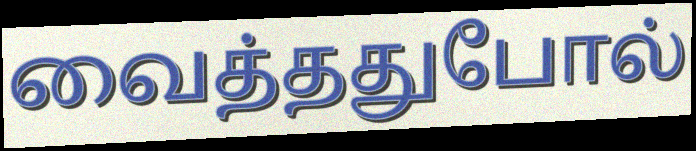
வைத்ததுபோல்